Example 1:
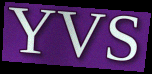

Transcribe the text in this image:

YVS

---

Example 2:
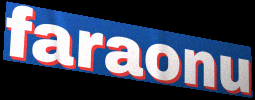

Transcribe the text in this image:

faraonu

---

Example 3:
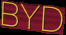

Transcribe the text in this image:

BYD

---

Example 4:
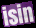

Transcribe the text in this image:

isin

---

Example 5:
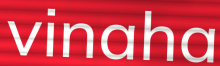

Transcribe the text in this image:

vinaha